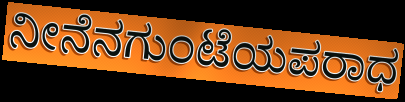
ನೀನೆನಗುಂಟೆಯಪರಾಧ